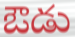
ఔడు